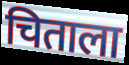
चिताला